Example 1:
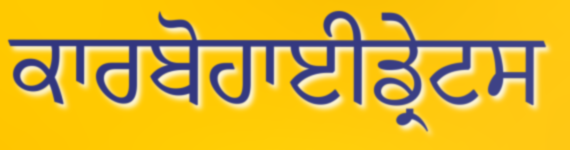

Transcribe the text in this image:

ਕਾਰਬੋਹਾਈਡ੍ਰੇਟਸ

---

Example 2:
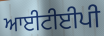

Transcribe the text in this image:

ਆਈਟੀਈਪੀ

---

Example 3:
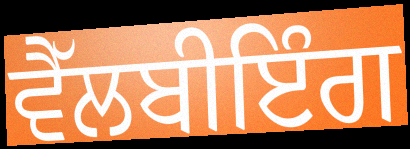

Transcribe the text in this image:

ਵੈੱਲਬੀਇੰਗ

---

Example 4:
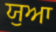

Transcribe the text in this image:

ਯੁਆ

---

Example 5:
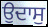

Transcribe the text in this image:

ਉਦਾਸੁ